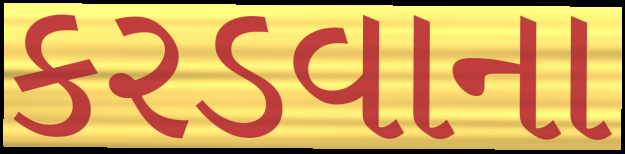
કરડવાના